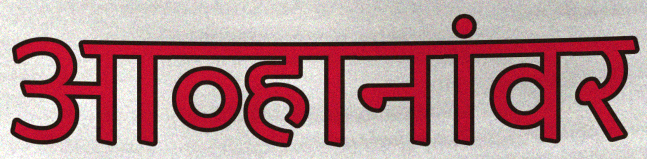
आव्हानांवर